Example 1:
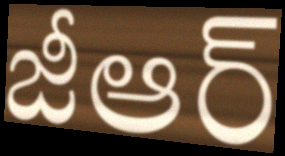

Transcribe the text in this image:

జీఆర్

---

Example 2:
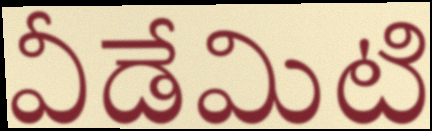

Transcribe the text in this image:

వీడేమిటి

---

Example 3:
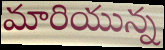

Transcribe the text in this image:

మారియున్న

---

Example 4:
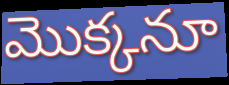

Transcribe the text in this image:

మొక్కనూ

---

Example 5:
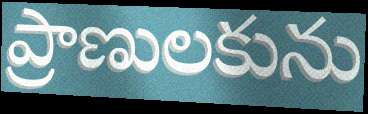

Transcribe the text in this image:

ప్రాణులకును